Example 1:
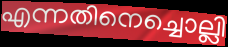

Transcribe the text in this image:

എന്നതിനെച്ചൊല്ലി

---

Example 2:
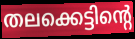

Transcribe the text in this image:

തലക്കെട്ടിന്റെ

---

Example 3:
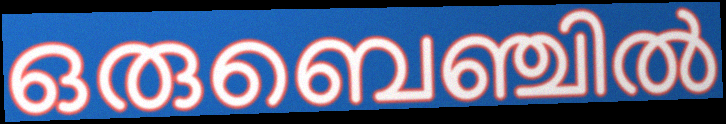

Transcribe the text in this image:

ഒരുബെഞ്ചിൽ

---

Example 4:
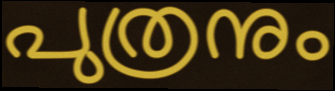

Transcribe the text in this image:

പുത്രനും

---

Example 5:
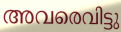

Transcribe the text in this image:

അവരെവിട്ടു